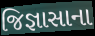
જિજ્ઞાસાના